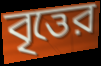
বৃত্তের